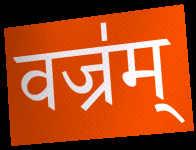
वज्र॑म्